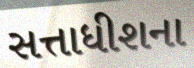
સત્તાધીશના